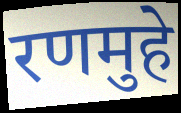
रणमुहे